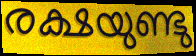
രക്ഷയുണ്ടു